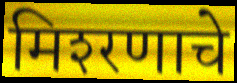
मिश्रणाचे